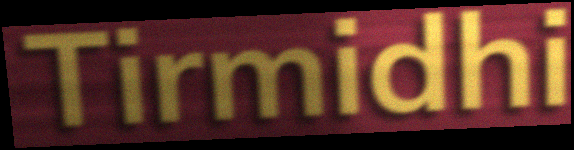
Tirmidhi